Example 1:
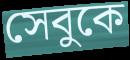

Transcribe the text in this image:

সেবুকে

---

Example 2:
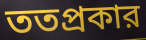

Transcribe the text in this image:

ততপ্রকার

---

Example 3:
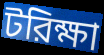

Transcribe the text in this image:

টরিক্ষা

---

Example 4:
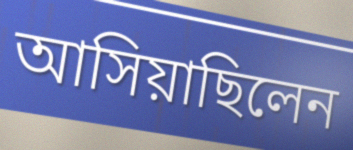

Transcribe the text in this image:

আসিয়াছিলেন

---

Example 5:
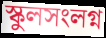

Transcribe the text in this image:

স্কুলসংলগ্ন